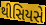
થીસિયસે